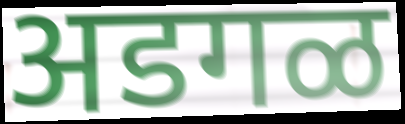
अडगळ